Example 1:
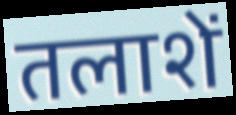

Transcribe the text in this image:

तलाशें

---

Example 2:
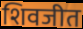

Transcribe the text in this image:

शिवजीत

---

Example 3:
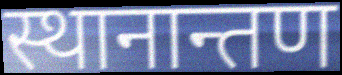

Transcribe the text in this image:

स्थानान्तण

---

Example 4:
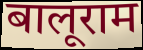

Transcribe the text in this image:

बालूराम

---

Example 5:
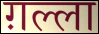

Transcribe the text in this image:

ग़ल्ला